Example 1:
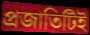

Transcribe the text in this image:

প্রজাতিটিই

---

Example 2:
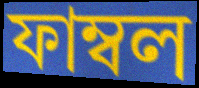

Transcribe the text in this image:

ফাম্বল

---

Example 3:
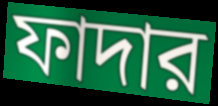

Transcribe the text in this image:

ফাদার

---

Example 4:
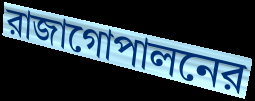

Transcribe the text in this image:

রাজাগোপালনের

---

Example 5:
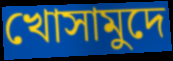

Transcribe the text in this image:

খোসামুদে